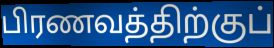
பிரணவத்திற்குப்